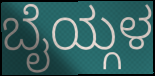
ಬೈಯ್ಗಳ